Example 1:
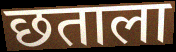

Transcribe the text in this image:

छताला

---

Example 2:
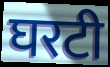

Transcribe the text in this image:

घरटी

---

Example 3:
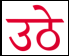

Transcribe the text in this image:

उठे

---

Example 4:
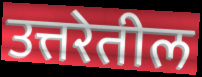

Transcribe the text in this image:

उत्तरेतील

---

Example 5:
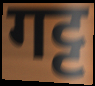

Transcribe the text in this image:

गट्ट